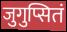
जुगुप्सितं